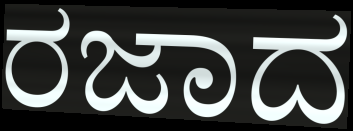
ರಜಾದ